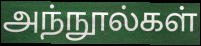
அந்நூல்கள்